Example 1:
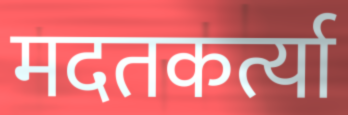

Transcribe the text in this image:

मदतकर्त्या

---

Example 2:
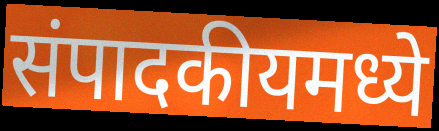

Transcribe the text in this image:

संपादकीयमध्ये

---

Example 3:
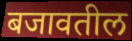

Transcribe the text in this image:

बजावतील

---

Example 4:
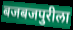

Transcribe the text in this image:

बजबजपुरीला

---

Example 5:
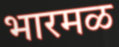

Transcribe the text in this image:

भारमळ